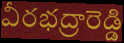
వీరభద్రారెడ్డి